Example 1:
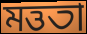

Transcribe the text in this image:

মত্ততা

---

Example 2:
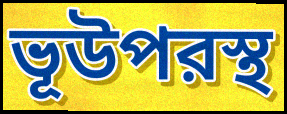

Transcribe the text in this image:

ভূউপরস্থ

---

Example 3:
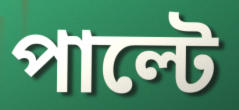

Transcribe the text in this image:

পাল্টে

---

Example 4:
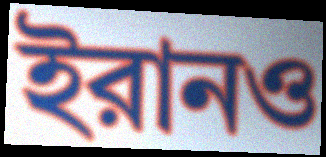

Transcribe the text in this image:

ইরানও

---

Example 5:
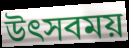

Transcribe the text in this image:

উৎসবময়